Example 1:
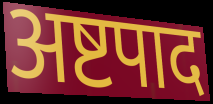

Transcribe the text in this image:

अष्टपाद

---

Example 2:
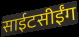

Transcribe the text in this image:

साईटसीईंग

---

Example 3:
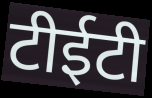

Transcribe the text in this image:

टीईटी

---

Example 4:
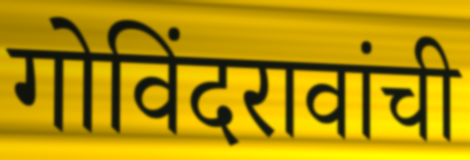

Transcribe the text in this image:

गोविंदरावांची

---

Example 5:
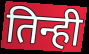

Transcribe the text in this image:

तिन्ही